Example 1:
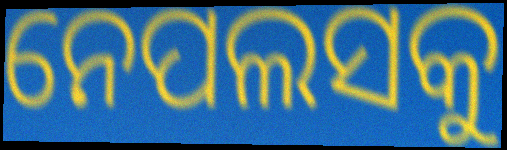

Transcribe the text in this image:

ନେପଲସକୁ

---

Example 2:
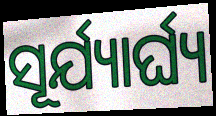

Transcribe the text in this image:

ସୂର୍ଯ୍ୟାର୍ଘ୍ୟ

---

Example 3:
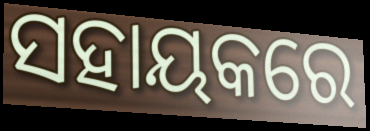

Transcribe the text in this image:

ସହାୟକରେ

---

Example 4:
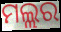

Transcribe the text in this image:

ମଲ୍ଲର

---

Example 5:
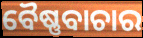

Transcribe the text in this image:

ବୈଷ୍ଣବାଚାର